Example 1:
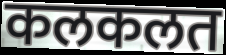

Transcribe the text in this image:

कलकलत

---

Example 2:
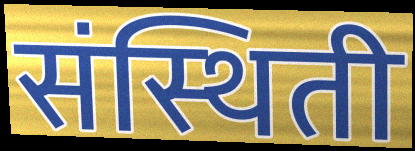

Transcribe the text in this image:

संस्थिती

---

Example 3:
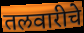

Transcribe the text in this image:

तलवारीचे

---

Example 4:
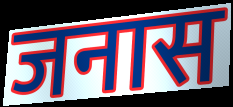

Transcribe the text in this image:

जनास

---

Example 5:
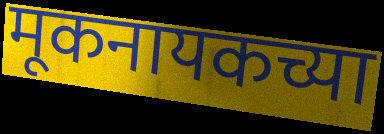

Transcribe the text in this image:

मूकनायकच्या